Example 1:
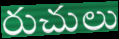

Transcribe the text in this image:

రుచులు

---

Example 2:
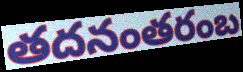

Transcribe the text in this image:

తదనంతరంబ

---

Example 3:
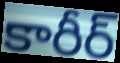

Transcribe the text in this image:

కారీర్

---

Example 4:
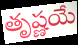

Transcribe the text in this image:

తృష్ణయే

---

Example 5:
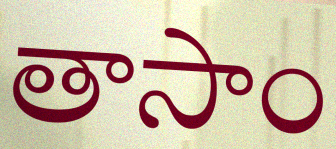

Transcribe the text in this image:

తాసాం